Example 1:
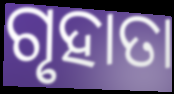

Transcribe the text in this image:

ଗୃହାତା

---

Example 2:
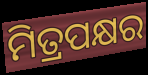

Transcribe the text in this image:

ମିତ୍ରପକ୍ଷର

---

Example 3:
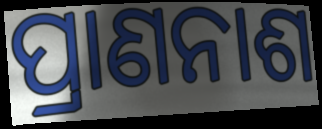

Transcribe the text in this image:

ପ୍ରାଣନାଶ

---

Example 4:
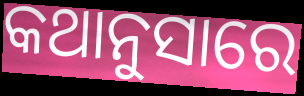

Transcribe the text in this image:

କଥାନୁସାରେ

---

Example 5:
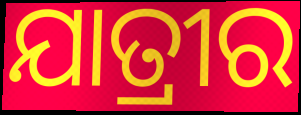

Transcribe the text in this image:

ଯାତ୍ରୀର